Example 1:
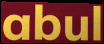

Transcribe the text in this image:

abul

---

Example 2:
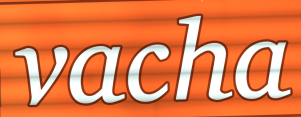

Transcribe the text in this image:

vacha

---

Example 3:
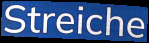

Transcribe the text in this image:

Streiche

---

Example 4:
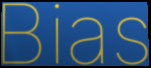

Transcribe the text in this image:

Bias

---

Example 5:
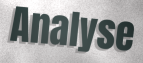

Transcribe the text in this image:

Analyse